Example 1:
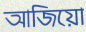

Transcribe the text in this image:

আজিয়ো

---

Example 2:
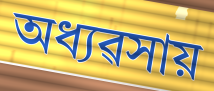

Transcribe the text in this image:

অধ্যৱসায়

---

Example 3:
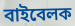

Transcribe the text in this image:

বাইবেলক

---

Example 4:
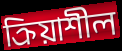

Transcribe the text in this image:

ক্ৰিয়াশীল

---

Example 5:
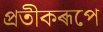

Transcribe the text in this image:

প্ৰতীকৰূপে